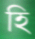
হি